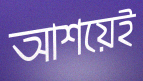
আশয়েই